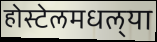
होस्टेलमधल्या